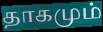
தாகமும்